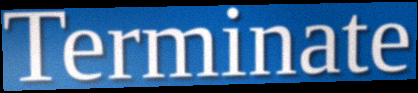
Terminate